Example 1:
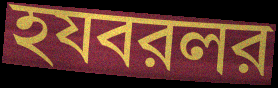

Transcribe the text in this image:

হযবরলর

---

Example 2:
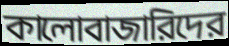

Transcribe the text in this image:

কালোবাজারিদের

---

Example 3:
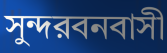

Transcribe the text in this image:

সুন্দরবনবাসী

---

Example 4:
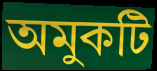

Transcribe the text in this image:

অমুকটি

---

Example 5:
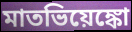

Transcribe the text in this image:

মাতভিয়েঙ্কো